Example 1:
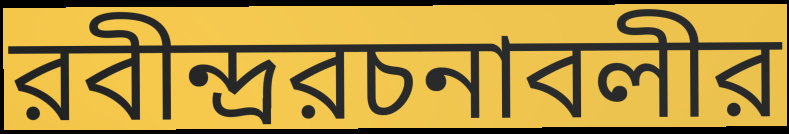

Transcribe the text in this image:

রবীন্দ্ররচনাবলীর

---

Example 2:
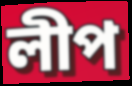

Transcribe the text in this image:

লীপ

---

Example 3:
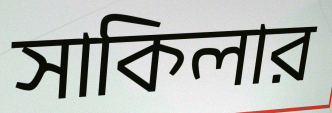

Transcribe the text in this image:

সাকিলার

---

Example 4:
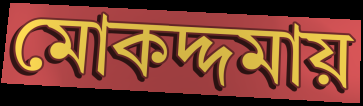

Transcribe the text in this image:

মোকদ্দমায়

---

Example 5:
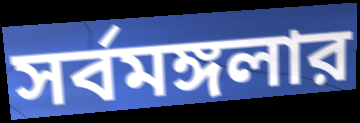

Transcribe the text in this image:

সর্বমঙ্গলার